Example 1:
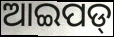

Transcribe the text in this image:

ଆଇପଡ୍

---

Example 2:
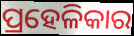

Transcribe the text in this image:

ପ୍ରହେଳିକାର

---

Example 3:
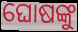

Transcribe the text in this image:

ଘୋଷଙ୍କୁ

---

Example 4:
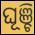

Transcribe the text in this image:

ଘୂଞ୍ଚି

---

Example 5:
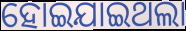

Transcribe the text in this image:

ହୋଇଯାଇଥଲା